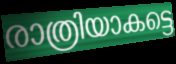
രാത്രിയാകട്ടെ